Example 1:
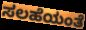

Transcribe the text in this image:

ಸಲಹೆಯಂತೆ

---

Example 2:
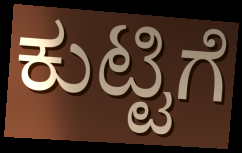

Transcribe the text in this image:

ಕುಟ್ಟಿಗೆ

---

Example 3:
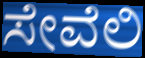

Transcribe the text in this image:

ಸೇವೆಲಿ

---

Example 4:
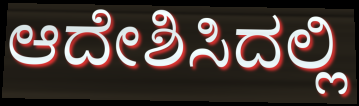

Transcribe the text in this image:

ಆದೇಶಿಸಿದಲ್ಲಿ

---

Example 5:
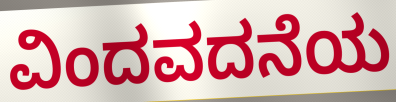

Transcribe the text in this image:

ವಿಂದವದನೆಯ